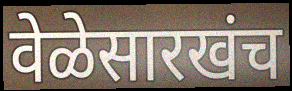
वेळेसारखंच